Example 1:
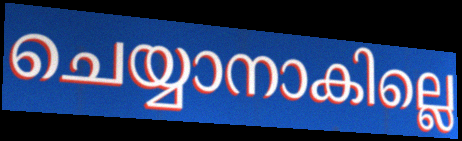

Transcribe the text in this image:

ചെയ്യാനാകില്ലെ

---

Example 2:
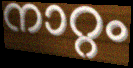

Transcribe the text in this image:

നാറ്റം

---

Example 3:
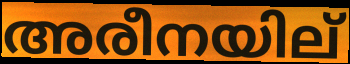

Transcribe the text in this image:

അരീനയില്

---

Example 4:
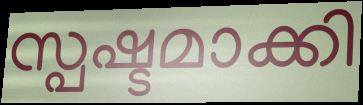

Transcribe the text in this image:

സ്പഷ്ടമാക്കി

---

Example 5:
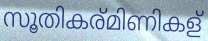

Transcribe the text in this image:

സൂതികര്മിണികള്